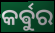
କର୍ଵୁର